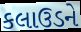
કલાઉડને